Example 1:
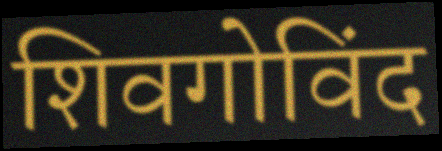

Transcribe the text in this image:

शिवगोविंद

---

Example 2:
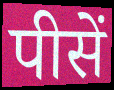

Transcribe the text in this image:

पीसें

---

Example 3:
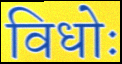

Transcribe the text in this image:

विधोः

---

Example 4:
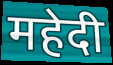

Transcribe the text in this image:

महेदी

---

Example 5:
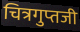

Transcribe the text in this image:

चित्रगुप्तजी